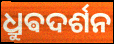
ଧ୍ରୁଵଦର୍ଶନ